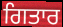
ਗਿਤਾਰ